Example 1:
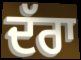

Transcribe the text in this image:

ਦੱਰਾ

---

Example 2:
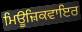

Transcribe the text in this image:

ਮਿਊਜ਼ਿਕਵਾਇਰ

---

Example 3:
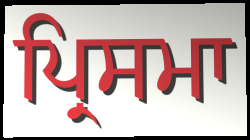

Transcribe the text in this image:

ਪ੍ਰਿਸਮਾ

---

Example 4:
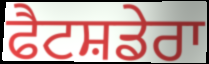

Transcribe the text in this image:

ਫੈਟਸ਼ਡੇਰਾ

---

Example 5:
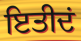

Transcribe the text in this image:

ਇਤੀਦਂ